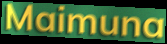
Maimuna